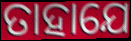
ତାହାଯେ